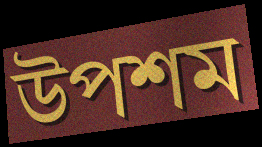
উপশম